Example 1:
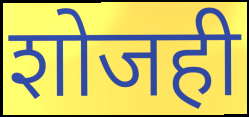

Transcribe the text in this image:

शोजही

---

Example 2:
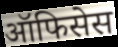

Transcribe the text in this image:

ऑफिसेस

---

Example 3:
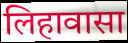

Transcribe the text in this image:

लिहावासा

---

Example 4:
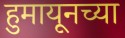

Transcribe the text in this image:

हुमायूनच्या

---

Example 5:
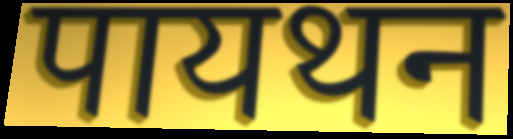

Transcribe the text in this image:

पायथन